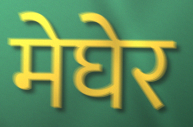
मेघेर